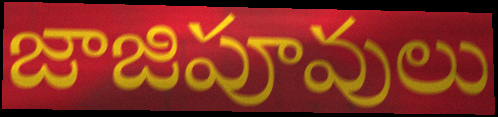
జాజిపూవులు